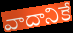
వాదానికే